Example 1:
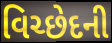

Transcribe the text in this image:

વિચ્છેદની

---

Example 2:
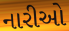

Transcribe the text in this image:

નારીઓ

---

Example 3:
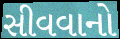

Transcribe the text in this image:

સીવવાનો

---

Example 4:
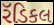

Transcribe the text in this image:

રૅડિકલ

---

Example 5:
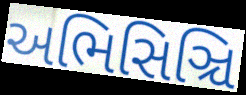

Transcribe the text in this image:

અભિસિઞ્ચિ